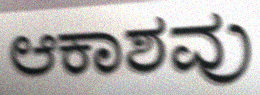
ಆಕಾಶವು